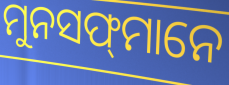
ମୁନସଫ୍‍ମାନେ